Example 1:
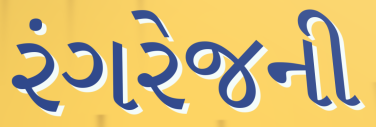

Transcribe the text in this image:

રંગરેજની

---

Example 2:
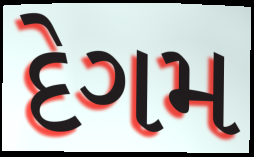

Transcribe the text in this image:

દેગમ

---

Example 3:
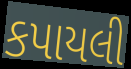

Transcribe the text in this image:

કપાયલી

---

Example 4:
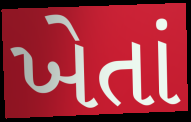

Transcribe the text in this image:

ખેતાં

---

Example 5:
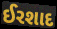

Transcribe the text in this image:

ઈરશાદ